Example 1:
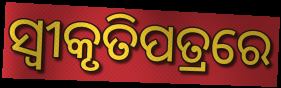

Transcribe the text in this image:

ସ୍ୱୀକୃତିପତ୍ରରେ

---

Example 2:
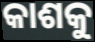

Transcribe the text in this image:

କାଶକୁ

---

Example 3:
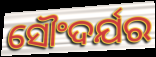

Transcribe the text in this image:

ସୌଂଦର୍ଯର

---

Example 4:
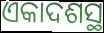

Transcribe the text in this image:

ଏକାଦଶସ୍ଥ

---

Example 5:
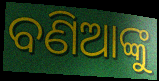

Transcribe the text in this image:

ବଣିଆଙ୍କୁ